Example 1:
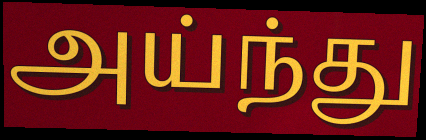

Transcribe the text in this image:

அய்ந்து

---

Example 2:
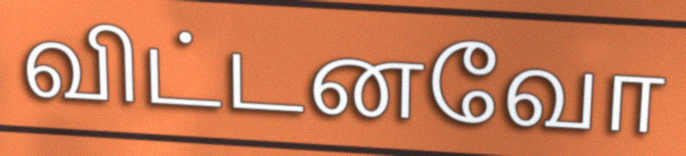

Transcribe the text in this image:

விட்டனவோ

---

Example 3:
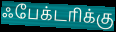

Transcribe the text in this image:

ஃபேக்டரிக்கு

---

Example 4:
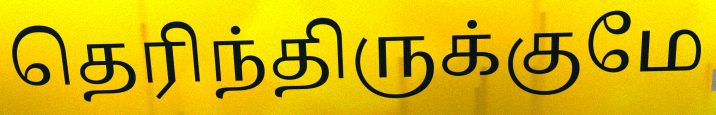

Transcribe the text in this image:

தெரிந்திருக்குமே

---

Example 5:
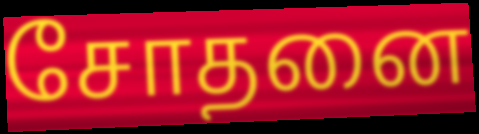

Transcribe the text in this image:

சோதனை